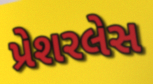
પ્રેશરલેસ